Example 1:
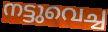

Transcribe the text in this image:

നട്ടുവെച്ച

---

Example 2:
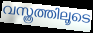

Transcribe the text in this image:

വസ്ത്രത്തിലൂടെ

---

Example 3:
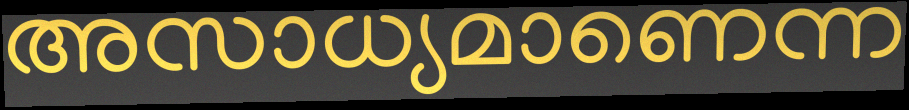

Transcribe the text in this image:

അസാധ്യമാണെന്ന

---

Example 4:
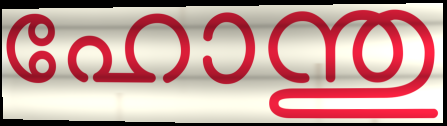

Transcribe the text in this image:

ഹോന്തു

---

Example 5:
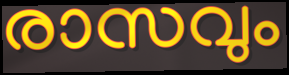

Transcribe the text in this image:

രാസവും